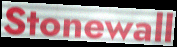
Stonewall